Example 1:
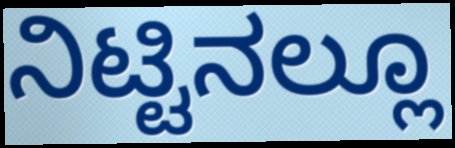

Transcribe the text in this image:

ನಿಟ್ಟಿನಲ್ಲೂ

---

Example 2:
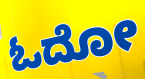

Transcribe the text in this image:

ಓದೋ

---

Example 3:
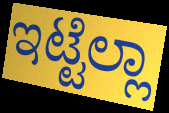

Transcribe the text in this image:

ಇಟ್ಟೆಲ್ಲಾ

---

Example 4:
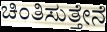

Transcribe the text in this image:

ಚಿಂತಿಸುತ್ತೇನೆ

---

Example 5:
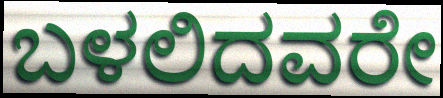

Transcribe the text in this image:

ಬಳಲಿದವರೇ